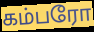
கம்பரோ